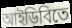
আইডিবিতে